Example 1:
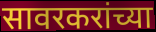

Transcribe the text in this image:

सावरकरांच्या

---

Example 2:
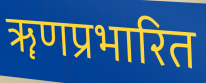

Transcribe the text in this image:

ॠणप्रभारित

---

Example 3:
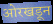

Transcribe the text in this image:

ओरखडून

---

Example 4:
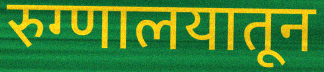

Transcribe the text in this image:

रुग्णालयातून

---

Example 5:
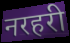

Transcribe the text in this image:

नरहरी